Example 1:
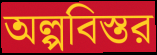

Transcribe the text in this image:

অল্পবিস্তর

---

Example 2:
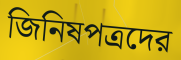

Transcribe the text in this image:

জিনিষপত্রদের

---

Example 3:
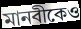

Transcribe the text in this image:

মানবীকেও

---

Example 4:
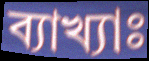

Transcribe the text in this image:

ব্যাখ্যাঃ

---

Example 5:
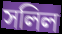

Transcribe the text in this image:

সলিল